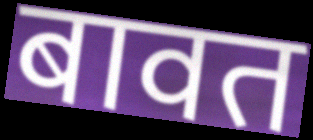
बावत